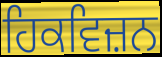
ਹਿਕਵਿਜ਼ਨ